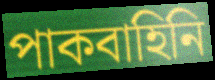
পাকবাহিনি